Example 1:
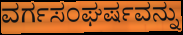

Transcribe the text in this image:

ವರ್ಗಸಂಘರ್ಷವನ್ನು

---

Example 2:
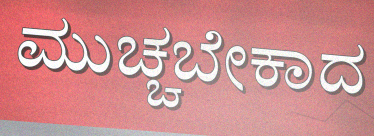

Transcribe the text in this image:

ಮುಚ್ಚಬೇಕಾದ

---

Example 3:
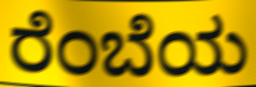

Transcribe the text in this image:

ರೆಂಬೆಯ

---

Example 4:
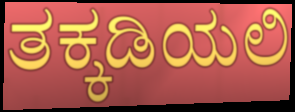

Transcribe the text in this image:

ತಕ್ಕಡಿಯಲಿ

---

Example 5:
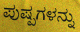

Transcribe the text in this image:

ಪುಷ್ಪಗಳನ್ನು